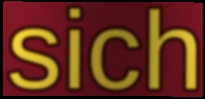
sich